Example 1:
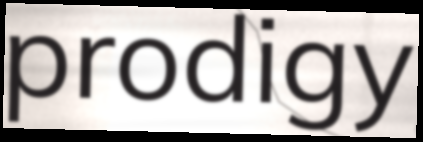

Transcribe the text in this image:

prodigy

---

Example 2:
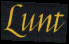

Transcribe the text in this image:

Lunt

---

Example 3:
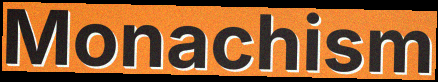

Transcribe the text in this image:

Monachism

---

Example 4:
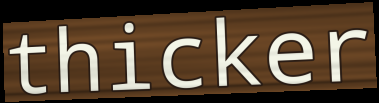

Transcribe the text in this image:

thicker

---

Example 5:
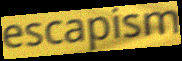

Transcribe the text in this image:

escapism